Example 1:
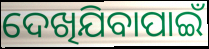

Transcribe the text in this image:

ଦେଖିଯିବାପାଇଁ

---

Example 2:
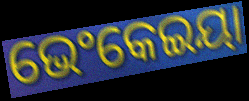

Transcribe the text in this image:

ଭେଂକେଇୟା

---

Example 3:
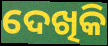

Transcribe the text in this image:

ଦେଖିକି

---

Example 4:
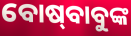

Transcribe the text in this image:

ବୋଷ୍‍ବାବୁଙ୍କ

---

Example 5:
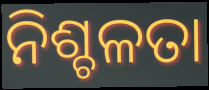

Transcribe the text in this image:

ନିଶ୍ଚଳତା